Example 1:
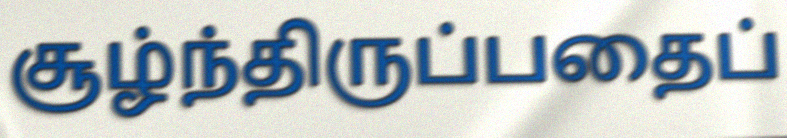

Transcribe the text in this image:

சூழ்ந்திருப்பதைப்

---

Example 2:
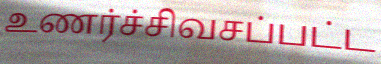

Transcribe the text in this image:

உணர்ச்சிவசப்பட்ட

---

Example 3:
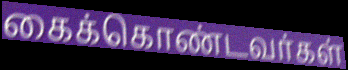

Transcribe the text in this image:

கைக்கொண்டவர்கள்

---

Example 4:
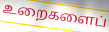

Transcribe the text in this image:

உறைகளைப்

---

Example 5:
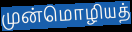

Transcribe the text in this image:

முன்மொழியத்